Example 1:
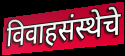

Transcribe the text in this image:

विवाहसंस्थेचे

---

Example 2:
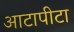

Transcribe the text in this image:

आटापीटा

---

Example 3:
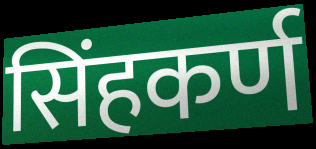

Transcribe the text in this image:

सिंहकर्ण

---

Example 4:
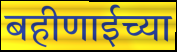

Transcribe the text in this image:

बहीणाईच्या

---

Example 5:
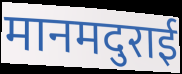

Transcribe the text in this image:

मानमदुराई